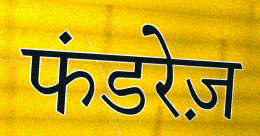
फंडरेज़